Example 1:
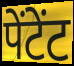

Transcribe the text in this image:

पेंटेंट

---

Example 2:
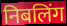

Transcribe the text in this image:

निबलिंग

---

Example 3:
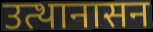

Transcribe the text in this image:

उत्थानासन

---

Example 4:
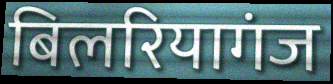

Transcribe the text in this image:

बिलरियागंज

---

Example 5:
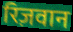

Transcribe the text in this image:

रिज़वान